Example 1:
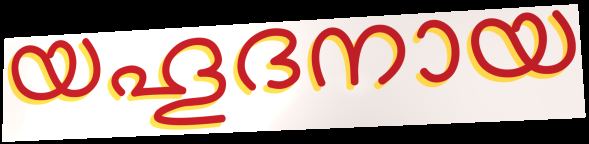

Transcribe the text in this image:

യഹൂദനായ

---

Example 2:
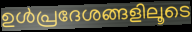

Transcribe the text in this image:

ഉൾപ്രദേശങ്ങളിലൂടെ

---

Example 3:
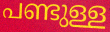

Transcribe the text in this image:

പണ്ടുള്ള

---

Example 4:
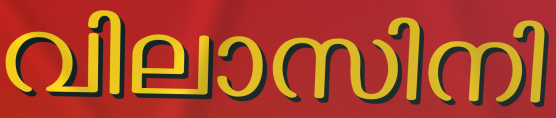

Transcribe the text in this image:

വിലാസിനി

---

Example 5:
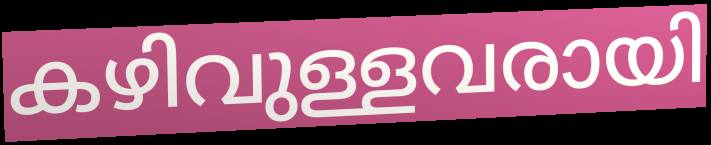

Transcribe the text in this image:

കഴിവുള്ളവരായി